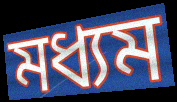
মধ্যম